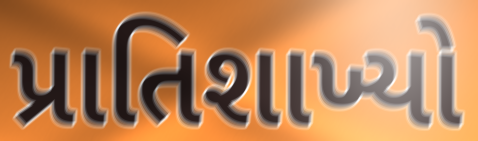
પ્રાતિશાખ્યો